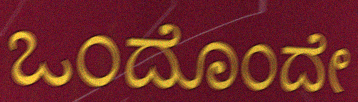
ಒಂದೊಂದೇ